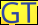
GT